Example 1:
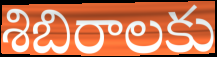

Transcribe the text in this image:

శిబిరాలకు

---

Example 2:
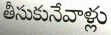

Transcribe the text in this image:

తీసుకునేవాళ్లు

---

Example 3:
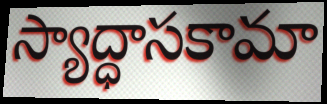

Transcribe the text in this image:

స్యాద్ధాసకామా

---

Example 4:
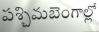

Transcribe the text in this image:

పశ్చిమబెంగాల్లో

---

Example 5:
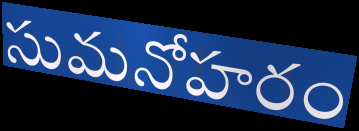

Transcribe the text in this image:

సుమనోహరం